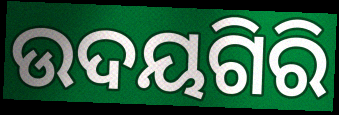
ଉଦୟଗିରି